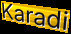
Karadi